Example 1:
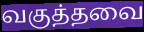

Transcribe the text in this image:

வகுத்தவை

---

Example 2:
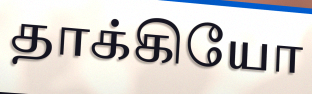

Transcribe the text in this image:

தாக்கியோ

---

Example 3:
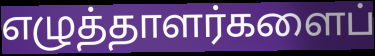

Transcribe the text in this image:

எழுத்தாளர்களைப்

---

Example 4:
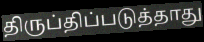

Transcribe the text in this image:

திருப்திப்படுத்தாது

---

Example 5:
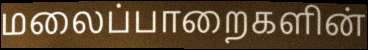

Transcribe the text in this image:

மலைப்பாறைகளின்